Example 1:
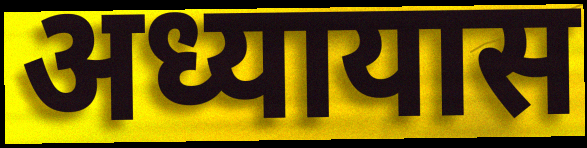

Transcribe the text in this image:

अध्यायास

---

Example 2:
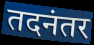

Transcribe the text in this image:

तदनंतर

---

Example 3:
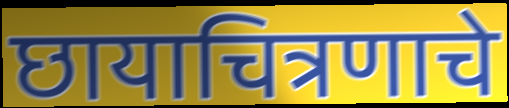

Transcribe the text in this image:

छायाचित्रणाचे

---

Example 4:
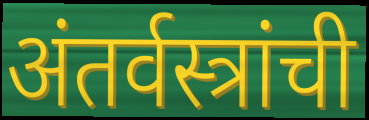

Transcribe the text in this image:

अंतर्वस्त्रांची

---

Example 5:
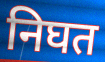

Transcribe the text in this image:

निघत